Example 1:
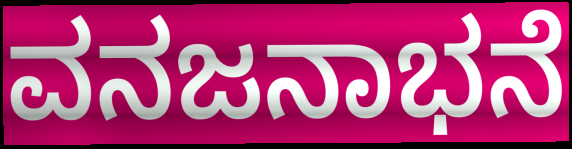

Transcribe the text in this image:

ವನಜನಾಭನೆ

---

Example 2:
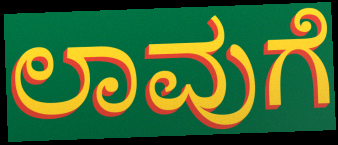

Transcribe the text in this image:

ಲಾವುಗೆ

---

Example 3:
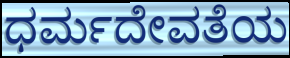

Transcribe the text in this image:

ಧರ್ಮದೇವತೆಯ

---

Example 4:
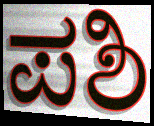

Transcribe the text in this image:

ಪಶಿ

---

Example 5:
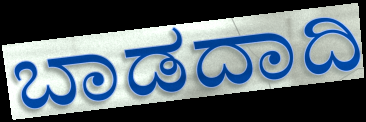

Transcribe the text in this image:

ಬಾಡದಾದಿ